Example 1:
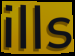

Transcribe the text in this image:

ills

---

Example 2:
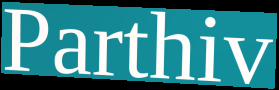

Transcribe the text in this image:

Parthiv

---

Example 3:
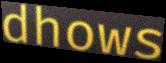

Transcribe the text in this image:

dhows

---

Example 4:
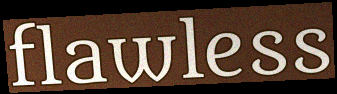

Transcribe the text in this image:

flawless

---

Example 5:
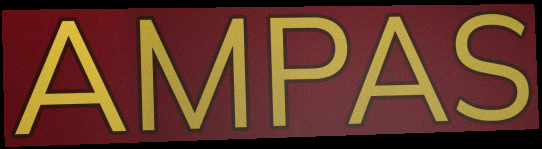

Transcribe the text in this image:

AMPAS